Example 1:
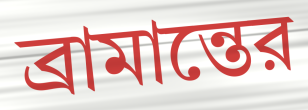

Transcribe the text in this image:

ব্রামান্তের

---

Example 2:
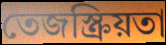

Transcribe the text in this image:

তেজস্ক্রিয়তা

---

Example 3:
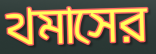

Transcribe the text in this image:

থমাসের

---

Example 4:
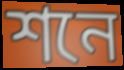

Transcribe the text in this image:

শনে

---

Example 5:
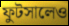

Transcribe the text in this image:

ফুটসালেও